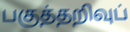
பகுத்தறிவுப்